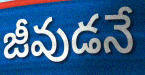
జీవుడనే